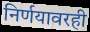
निर्णयावरही